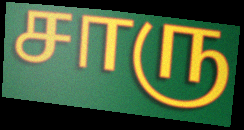
சாரு